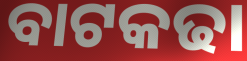
ବାଟକଢା